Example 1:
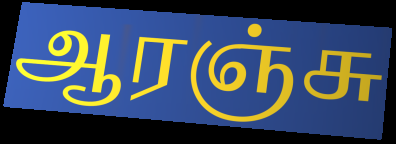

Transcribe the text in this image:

ஆரஞ்சு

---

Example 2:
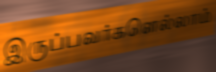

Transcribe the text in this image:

இருப்பவர்களெல்லாம்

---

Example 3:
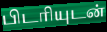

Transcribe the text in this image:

பிடரியுடன்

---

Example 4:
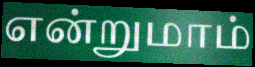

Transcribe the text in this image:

என்றுமாம்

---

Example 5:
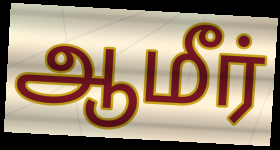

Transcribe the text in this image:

ஆமீர்